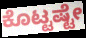
ಕೊಟ್ಟಷ್ಟೇ